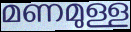
മണമുള്ള